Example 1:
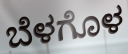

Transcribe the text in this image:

ಬೆಳಗೊಳ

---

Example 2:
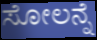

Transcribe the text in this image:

ಸೋಲನ್ನೆ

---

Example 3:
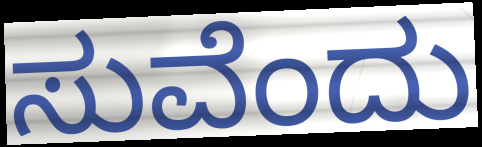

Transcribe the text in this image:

ಸುವೆಂದು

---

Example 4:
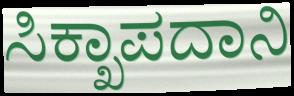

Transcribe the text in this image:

ಸಿಕ್ಖಾಪದಾನಿ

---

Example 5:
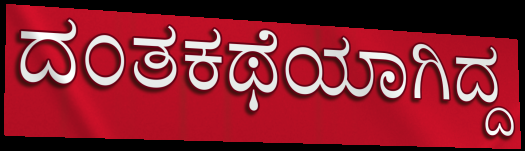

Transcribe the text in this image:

ದಂತಕಥೆಯಾಗಿದ್ದ